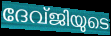
ദേവ്ജിയുടെ